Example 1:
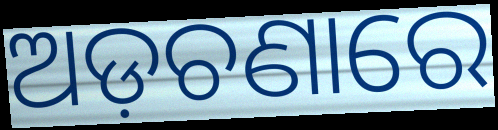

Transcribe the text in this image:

ଅଡ଼ଚଣାରେ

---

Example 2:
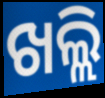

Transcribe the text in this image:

ଖଲ୍ଲି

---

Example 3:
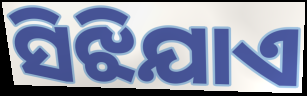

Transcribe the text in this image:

ସିଝିଯାଏ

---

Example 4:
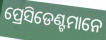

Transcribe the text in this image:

ପ୍ରେସିଡେଣ୍ଟମାନେ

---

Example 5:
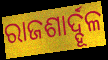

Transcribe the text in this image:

ରାଜଶାର୍ଦ୍ଦୂଳ